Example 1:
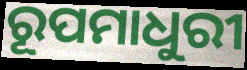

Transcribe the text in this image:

ରୂପମାଧୁରୀ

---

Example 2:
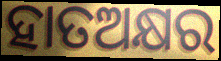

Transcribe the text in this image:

ହାତଅକ୍ଷର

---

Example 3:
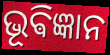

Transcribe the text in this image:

ଭୂଵିଜ୍ଞାନ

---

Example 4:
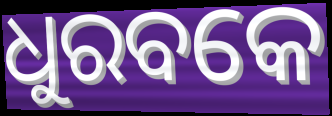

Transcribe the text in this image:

ଧୁରବକେ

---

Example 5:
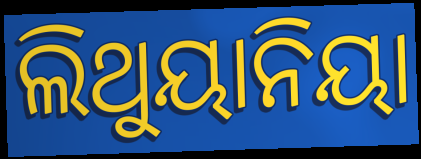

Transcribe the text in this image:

ଲିଥୁୟାନିୟା